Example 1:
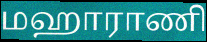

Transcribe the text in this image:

மஹாராணி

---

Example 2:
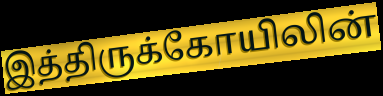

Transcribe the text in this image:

இத்திருக்கோயிலின்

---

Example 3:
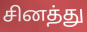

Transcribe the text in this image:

சினத்து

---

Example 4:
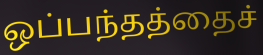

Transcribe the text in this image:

ஒப்பந்தத்தைச்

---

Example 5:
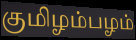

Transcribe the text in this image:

குமிழம்பழம்